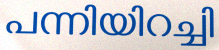
പന്നിയിറച്ചി